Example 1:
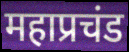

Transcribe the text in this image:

महाप्रचंड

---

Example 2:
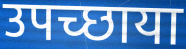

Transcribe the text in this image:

उपच्छाया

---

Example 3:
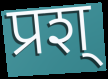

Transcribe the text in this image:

प्रश्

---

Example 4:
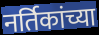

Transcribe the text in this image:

नर्तिकांच्या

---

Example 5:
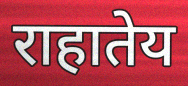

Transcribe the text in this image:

राहातेय